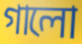
গালো